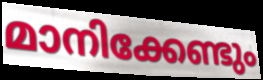
മാനിക്കേണ്ടും